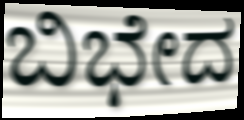
ಬಿಭೇದ